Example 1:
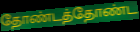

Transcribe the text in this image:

தோண்டத்தோண்ட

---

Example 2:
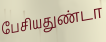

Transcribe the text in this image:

பேசியதுண்டா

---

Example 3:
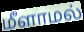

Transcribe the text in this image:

மீளாமல்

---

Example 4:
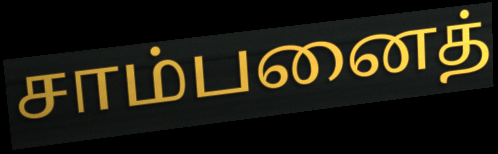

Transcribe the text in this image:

சாம்பனைத்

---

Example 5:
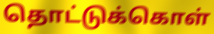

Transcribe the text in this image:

தொட்டுக்கொள்